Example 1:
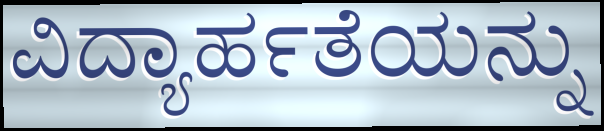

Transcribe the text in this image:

ವಿದ್ಯಾರ್ಹತೆಯನ್ನು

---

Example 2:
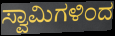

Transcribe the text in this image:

ಸ್ವಾಮಿಗಳಿಂದ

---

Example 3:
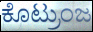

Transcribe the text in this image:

ಕೊಟ್ರುಂಜ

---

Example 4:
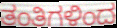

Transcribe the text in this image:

ತಂತಿಗಳಿಂದ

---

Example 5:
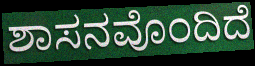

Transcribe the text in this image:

ಶಾಸನವೊಂದಿದೆ